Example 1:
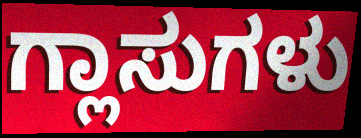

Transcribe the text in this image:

ಗ್ಲಾಸುಗಳು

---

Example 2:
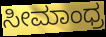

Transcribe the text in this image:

ಸೀಮಾಂಧ್ರ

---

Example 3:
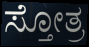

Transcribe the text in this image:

ಸ್ತೋತ್ರ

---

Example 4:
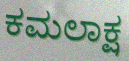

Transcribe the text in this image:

ಕಮಲಾಕ್ಷ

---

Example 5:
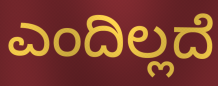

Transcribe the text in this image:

ಎಂದಿಲ್ಲದೆ